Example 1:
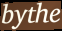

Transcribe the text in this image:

bythe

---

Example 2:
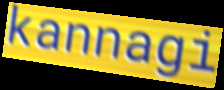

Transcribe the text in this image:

kannagi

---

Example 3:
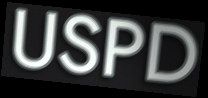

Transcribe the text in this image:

USPD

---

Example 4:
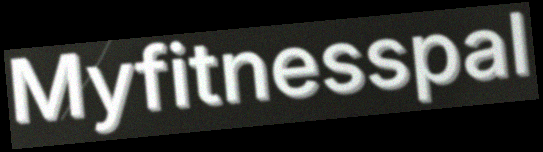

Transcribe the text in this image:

Myfitnesspal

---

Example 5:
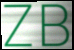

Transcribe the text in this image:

ZB